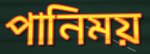
পানিময়